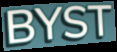
BYST